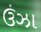
ઉંઝા